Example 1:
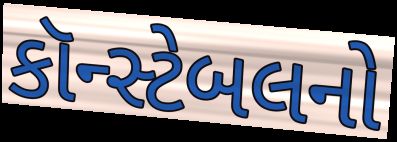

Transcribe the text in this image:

કૉન્સ્ટેબલનો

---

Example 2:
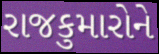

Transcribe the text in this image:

રાજકુમારોને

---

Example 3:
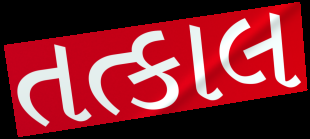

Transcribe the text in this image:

તત્કાલ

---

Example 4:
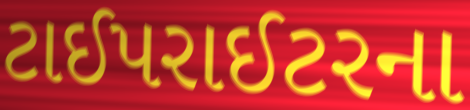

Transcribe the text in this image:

ટાઈપરાઈટરના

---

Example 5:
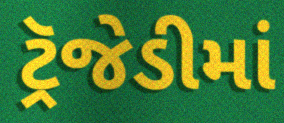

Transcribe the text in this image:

ટ્રૅજેડીમાં